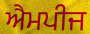
ਐਮਪੀਜ